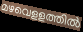
മഴവെളളത്തിൽ